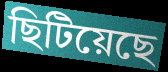
ছিটিয়েছে